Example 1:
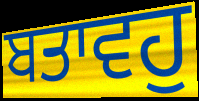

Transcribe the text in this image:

ਬਤਾਵਹੁ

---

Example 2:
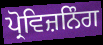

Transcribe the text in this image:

ਪ੍ਰੋਵਿਜ਼ਨਿੰਗ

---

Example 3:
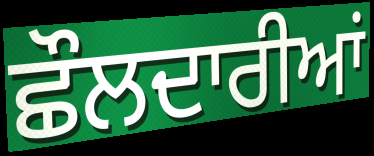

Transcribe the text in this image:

ਛੌਲਦਾਰੀਆਂ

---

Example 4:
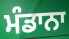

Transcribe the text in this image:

ਮੰਡਾਨਾ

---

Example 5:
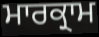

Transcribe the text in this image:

ਮਾਰਕ੍ਰਾਮ